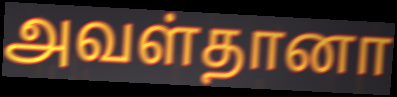
அவள்தானா